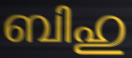
ബിഹു